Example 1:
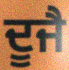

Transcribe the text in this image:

ਦੂਜੈ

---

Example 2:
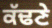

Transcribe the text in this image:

ਕੱਢਣੇ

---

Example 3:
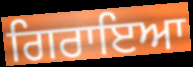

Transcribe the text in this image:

ਗਿਰਾਇਆ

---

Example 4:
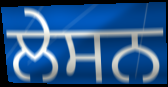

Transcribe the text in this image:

ਲੇਸਨ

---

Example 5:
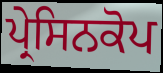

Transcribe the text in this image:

ਪ੍ਰੇਸਿਨਕੋਪ